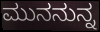
ಮುನನುನ್ನ